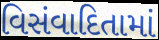
વિસંવાદિતામાં